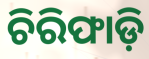
ଚିରିଫାଡ଼ି